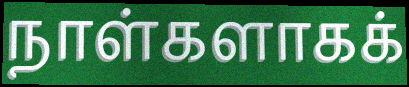
நாள்களாகக்